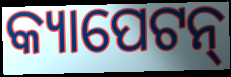
କ୍ୟାପେଟନ୍